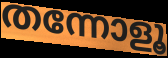
തന്നോളൂ